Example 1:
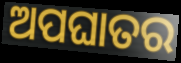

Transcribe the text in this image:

ଅପଘାତର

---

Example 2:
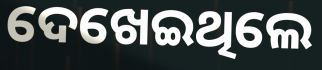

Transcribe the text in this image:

ଦେଖେଇଥିଲେ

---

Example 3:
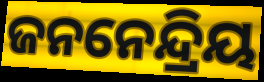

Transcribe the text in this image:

ଜନନେନ୍ଦ୍ରିୟ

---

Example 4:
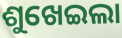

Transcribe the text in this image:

ଶୁଖେଇଲା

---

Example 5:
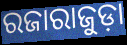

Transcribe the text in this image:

ରଜାରାଜୁଡ଼ା